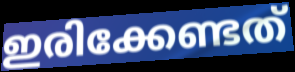
ഇരിക്കേണ്ടത്